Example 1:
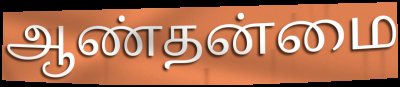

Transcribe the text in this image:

ஆண்தன்மை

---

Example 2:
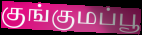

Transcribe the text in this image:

குங்குமப்பூ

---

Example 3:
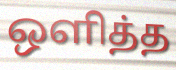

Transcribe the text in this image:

ஒளித்த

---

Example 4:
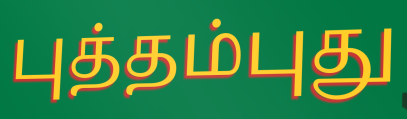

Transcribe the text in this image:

புத்தம்புது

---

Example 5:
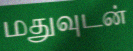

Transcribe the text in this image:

மதுவுடன்